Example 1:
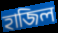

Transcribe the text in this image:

হাজিল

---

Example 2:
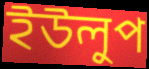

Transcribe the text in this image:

ইউলুপ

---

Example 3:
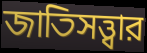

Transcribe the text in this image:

জাতিসত্ত্বার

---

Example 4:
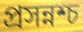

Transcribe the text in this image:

প্রসন্নশ্চ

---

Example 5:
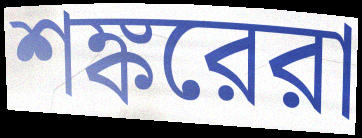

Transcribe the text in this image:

শঙ্করেরা